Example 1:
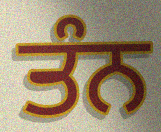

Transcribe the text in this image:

ਤੰਨ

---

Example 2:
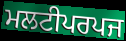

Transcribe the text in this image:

ਮਲਟੀਪਰਪਜ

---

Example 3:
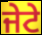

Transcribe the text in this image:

ਜੇਟੇ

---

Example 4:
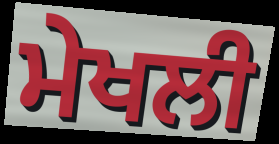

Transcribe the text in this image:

ਮੇਖਲੀ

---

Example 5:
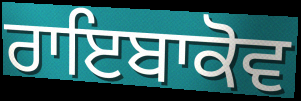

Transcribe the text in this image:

ਰਾਇਬਾਕੋਵ